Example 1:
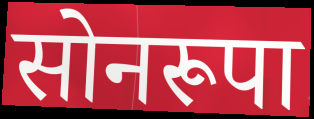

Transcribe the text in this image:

सोनरूपा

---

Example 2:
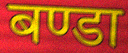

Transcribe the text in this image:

बण्डा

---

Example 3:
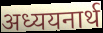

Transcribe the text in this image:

अध्ययनार्थ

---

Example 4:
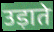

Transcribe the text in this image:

उड़ाते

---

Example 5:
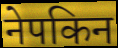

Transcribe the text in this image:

नेपकिन